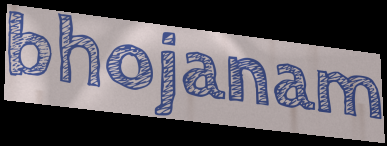
bhojanam